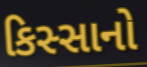
કિસ્સાનો